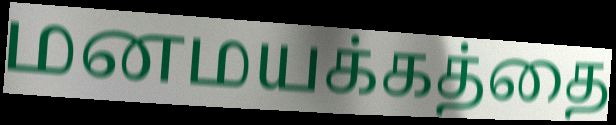
மனமயக்கத்தை